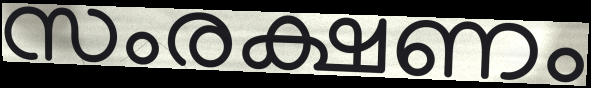
സംരക്ഷണം